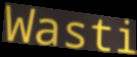
Wasti